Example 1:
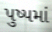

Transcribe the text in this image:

પુષ્પમાં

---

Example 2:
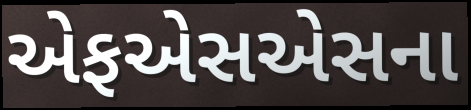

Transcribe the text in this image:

એફએસએસના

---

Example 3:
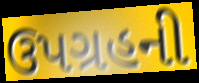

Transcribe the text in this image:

ઉપગ્રહની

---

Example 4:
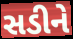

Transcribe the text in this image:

સડીને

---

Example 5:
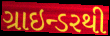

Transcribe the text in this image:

ગ્રાઇન્ડરથી